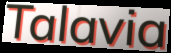
Talavia